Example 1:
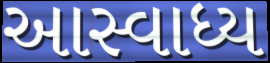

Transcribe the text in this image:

આસ્વાધ્ય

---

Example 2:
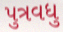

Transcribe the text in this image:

પુત્રવધુ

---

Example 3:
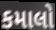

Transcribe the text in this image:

કમાલો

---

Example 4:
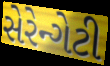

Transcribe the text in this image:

સેરેન્ગેટી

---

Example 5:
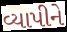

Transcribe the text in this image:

વ્યાપીને